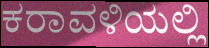
ಕರಾವಳಿಯಲ್ಲಿ